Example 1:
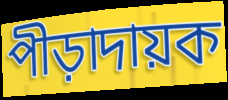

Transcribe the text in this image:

পীড়াদায়ক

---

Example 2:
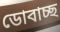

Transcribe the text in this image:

ডোবাচ্ছ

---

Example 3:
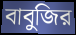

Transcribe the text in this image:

বাবুজির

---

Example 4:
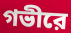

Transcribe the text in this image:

গভীরে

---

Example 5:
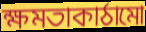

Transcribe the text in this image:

ক্ষমতাকাঠামো